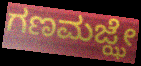
ಗಣಮಜ್ಝೇ